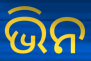
ଭିନ